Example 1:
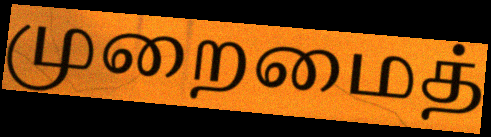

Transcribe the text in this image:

முறைமைத்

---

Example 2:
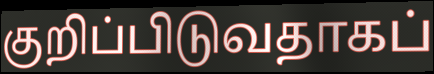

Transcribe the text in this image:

குறிப்பிடுவதாகப்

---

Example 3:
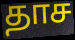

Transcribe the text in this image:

தாச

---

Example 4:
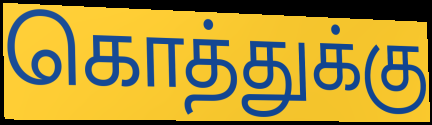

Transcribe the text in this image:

கொத்துக்கு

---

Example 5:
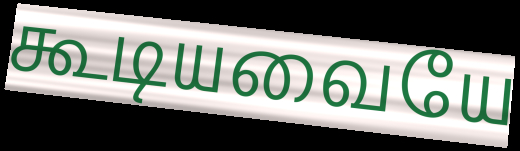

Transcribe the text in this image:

கூடியவையே